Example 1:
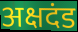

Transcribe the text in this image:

अक्षदंड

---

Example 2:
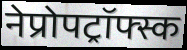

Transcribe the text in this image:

नेप्रोपट्रॉफ्स्क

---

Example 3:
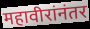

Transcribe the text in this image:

महावीरांनंतर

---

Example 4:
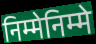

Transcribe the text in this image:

निम्मेनिम्मे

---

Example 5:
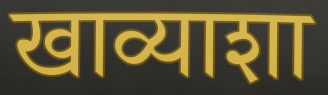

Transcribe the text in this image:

खाव्याशा